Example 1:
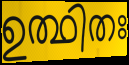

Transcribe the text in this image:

ഉത്ഥിതഃ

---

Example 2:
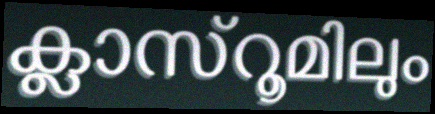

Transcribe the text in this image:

ക്ലാസ്റൂമിലും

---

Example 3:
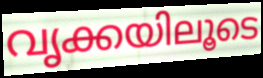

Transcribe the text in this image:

വൃക്കയിലൂടെ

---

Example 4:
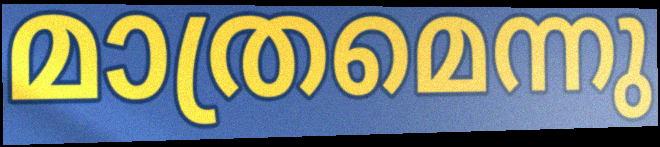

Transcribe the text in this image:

മാത്രമെന്നു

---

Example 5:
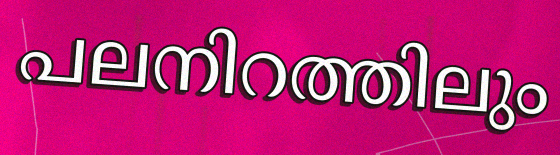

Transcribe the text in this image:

പലനിറത്തിലും